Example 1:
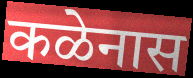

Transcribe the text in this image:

कळेनास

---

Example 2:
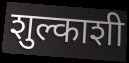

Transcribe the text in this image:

शुल्काशी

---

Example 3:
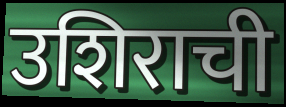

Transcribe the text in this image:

उशिराची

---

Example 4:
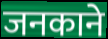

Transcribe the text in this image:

जनकाने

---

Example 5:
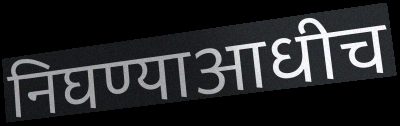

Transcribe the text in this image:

निघण्याआधीच